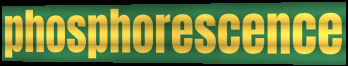
phosphorescence